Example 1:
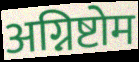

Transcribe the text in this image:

अग्निष्टोम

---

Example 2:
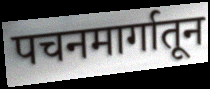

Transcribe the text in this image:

पचनमार्गातून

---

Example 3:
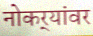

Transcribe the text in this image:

नोकर्यांवर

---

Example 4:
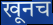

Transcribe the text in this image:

खूनच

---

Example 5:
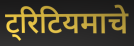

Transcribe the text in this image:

ट्रिटियमाचे